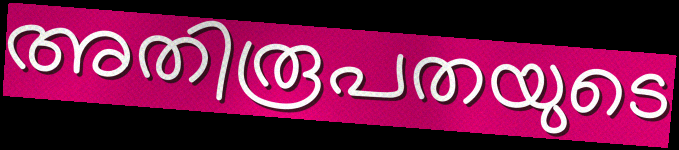
അതിരൂപതയുടെ